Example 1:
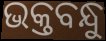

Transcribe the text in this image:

ଭକ୍ତବନ୍ଧୁ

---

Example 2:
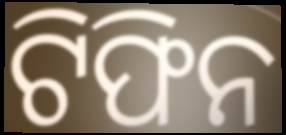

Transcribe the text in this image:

ଟିଫିନ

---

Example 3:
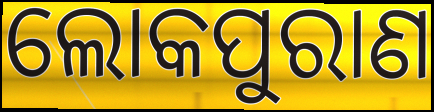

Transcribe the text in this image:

ଲୋକପୁରାଣ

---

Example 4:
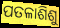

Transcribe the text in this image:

ପତଳାଶିଶୁ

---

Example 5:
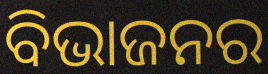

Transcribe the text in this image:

ବିଭାଜନର